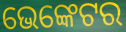
ଭେଙ୍କେଟର